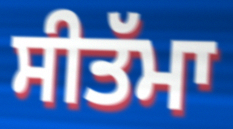
ਸੀਤੱਮਾ